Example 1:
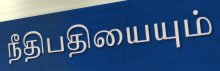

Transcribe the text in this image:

நீதிபதியையும்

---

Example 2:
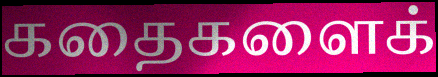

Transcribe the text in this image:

கதைகளைக்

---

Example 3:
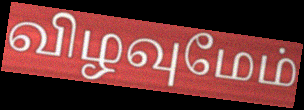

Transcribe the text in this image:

விழவுமேம்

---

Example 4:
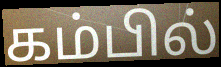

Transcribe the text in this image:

கம்பில்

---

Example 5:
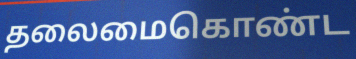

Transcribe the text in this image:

தலைமைகொண்ட